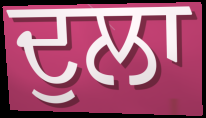
ਦੁਲਾ